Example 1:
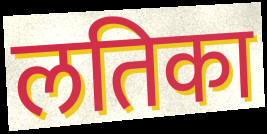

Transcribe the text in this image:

लतिका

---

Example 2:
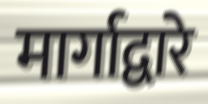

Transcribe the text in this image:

मार्गाद्वारे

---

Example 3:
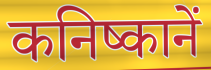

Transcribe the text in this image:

कनिष्कानें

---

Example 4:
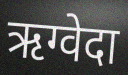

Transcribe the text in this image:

ऋग्वेदा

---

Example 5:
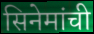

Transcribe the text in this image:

सिनेमांची